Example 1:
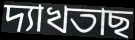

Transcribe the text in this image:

দ্যাখতাছ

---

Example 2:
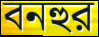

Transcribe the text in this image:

বনহুর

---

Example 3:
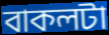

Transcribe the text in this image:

বাকলটা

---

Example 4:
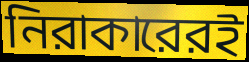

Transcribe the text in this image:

নিরাকারেরই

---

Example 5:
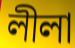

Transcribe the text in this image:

লীলা